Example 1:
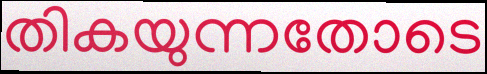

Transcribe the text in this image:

തികയുന്നതോടെ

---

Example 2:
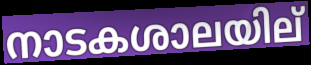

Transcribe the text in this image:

നാടകശാലയില്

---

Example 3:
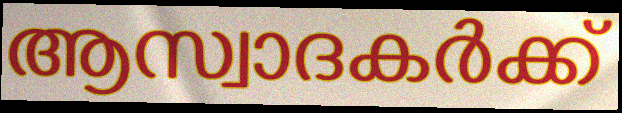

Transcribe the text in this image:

ആസ്വാദകർക്ക്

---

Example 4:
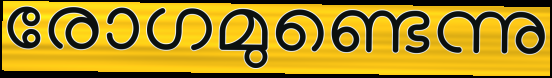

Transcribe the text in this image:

രോഗമുണ്ടെന്നു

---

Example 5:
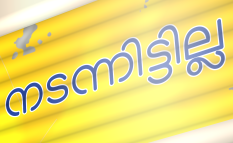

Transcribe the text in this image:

നടന്നിട്ടില്ല